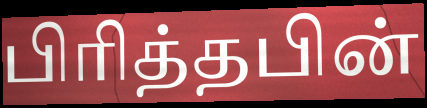
பிரித்தபின்